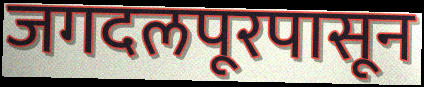
जगदलपूरपासून